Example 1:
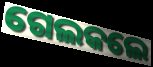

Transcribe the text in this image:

ଗେଲକଲେ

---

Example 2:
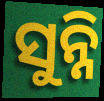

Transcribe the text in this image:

ସୁନ୍ନି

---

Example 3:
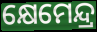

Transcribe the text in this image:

କ୍ଷେମେନ୍ଦ୍ର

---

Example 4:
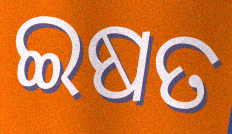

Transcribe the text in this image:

ଇଷତ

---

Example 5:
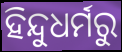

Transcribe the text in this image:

ହିନ୍ଦୁଧର୍ମରୁ